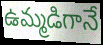
ఉమ్మడిగానే